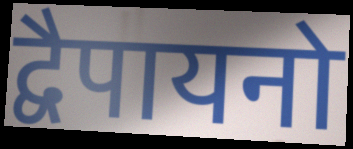
द्वैपायनो